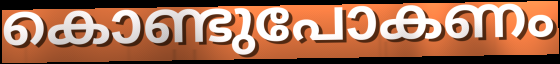
കൊണ്ടുപോകണം